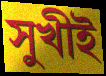
সুখীই